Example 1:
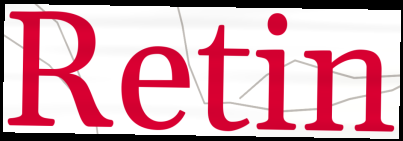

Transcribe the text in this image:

Retin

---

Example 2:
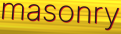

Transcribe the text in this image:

masonry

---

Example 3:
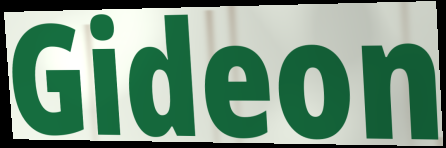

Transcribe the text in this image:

Gideon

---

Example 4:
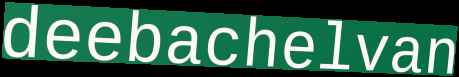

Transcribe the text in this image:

deebachelvan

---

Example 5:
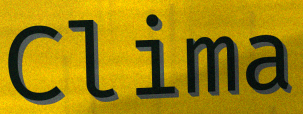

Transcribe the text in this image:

Clima